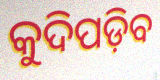
କୁଦିପଡ଼ିବ